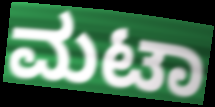
ಮಟಾ